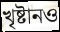
খৃষ্টানও